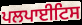
ਪਲਪਾਈਟਿਸ